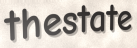
thestate